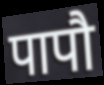
पापौ